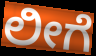
ಲೀಗೆ